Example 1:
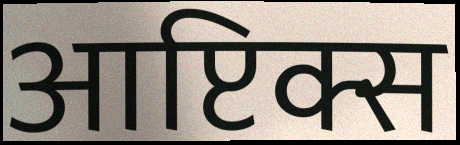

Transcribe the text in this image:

आप्टिक्स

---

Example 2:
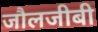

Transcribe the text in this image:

जौलजीबी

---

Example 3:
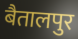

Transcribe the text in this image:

बैतालपुर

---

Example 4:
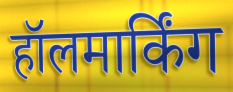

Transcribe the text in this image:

हॉलमार्किंग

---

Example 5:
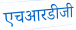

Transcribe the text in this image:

एचआरडीजी